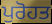
ਪੁਰੋਹਤ